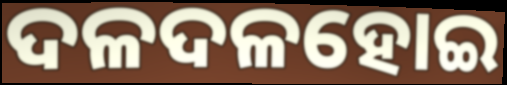
ଦଳଦଳହୋଇ